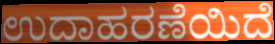
ಉದಾಹರಣೆಯಿದೆ